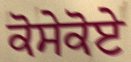
ਕੋਸੇਕੋਏ